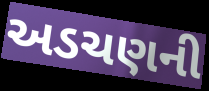
અડચણની